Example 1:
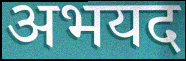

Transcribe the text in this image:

अभयद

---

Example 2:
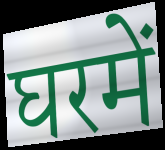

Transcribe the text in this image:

घरमें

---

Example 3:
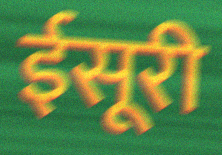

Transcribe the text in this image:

ईसूरी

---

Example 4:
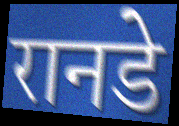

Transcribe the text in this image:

रानडे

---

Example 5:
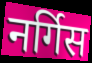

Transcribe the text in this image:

नर्गिस